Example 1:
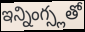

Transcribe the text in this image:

ఇన్నింగ్స్లతో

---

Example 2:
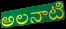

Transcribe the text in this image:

అలనాటి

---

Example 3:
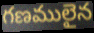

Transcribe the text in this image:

గణములైన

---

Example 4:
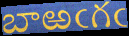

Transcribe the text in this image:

బాఱఁగఁ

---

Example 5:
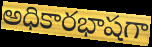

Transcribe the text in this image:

అధికారభాషగా